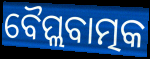
ବୈପ୍ଲବାତ୍ମକ